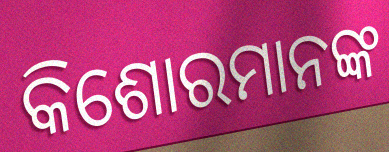
କିଶୋରମାନଙ୍କ